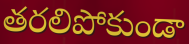
తరలిపోకుండా